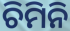
ଚିମିନି